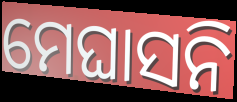
ମେଘାସନି